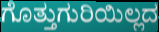
ಗೊತ್ತುಗುರಿಯಿಲ್ಲದ